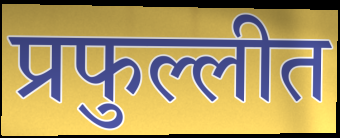
प्रफुल्लीत